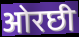
ओरछी